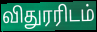
விதுரரிடம்